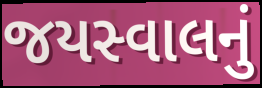
જયસ્વાલનું